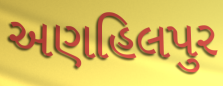
અણહિલપુર